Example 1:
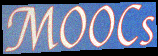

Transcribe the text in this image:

MOOCs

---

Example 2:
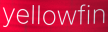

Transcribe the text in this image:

yellowfin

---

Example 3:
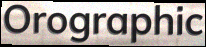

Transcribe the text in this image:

Orographic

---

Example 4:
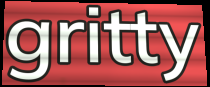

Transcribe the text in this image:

gritty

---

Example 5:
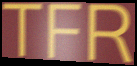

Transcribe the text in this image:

TFR